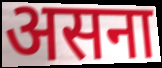
असना